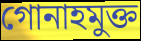
গোনাহমুক্ত